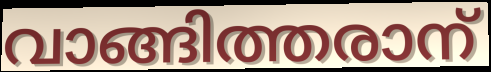
വാങ്ങിത്തരാന്